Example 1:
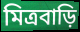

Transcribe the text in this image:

মিত্রবাড়ি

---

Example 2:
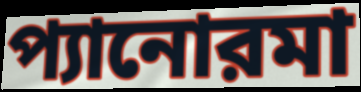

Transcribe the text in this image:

প্যানোরমা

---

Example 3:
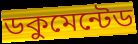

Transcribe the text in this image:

ডকুমেন্টেড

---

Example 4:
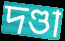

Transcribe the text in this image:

দণ্ডা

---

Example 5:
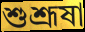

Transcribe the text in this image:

শুশ্রূষা